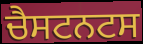
ਚੈਸਟਨਟਸ